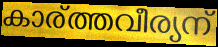
കാര്ത്തവീര്യന്